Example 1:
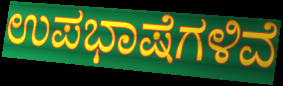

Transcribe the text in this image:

ಉಪಭಾಷೆಗಳಿವೆ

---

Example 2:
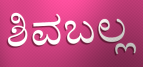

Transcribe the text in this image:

ಶಿವಬಲ್ಲ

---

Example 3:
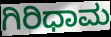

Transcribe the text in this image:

ಗಿರಿಧಾಮ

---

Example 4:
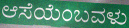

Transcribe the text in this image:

ಆಸೆಯೆಂಬವಳು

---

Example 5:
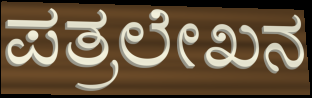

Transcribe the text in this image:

ಪತ್ರಲೇಖನ